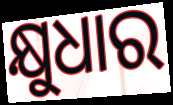
କ୍ଷୁଧାର